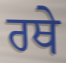
ਰਥੇ